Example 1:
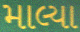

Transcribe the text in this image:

માલ્યા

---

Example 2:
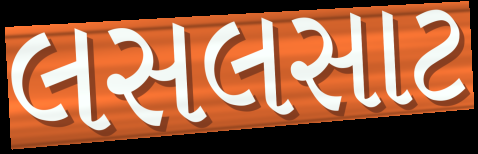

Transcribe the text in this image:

લસલસાટ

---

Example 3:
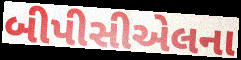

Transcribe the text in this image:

બીપીસીએલના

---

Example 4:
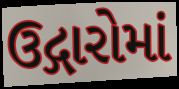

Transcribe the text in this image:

ઉદ્ગારોમાં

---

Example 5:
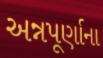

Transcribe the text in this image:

અન્નપૂર્ણાના